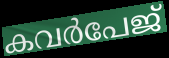
കവർപേജ്